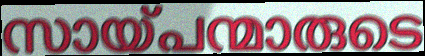
സായ്പന്മാരുടെ